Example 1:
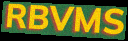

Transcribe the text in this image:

RBVMS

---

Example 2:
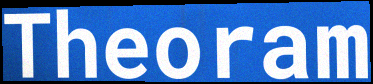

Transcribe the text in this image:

Theoram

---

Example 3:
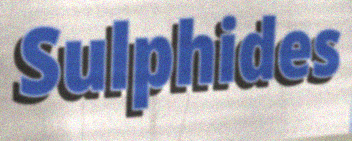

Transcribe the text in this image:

Sulphides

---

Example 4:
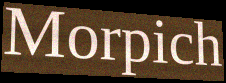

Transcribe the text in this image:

Morpich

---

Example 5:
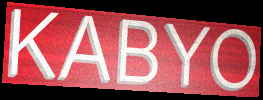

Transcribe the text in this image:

KABYO